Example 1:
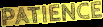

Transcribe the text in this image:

PATIENCE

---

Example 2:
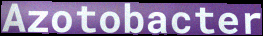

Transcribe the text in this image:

Azotobacter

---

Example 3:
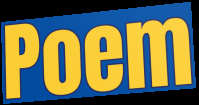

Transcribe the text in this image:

Poem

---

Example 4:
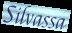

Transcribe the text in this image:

Silvassa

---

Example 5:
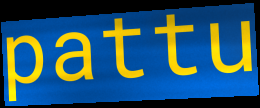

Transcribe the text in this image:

pattu